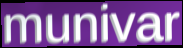
munivar